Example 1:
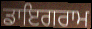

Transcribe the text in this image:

ਡਾਇਗਰਾਮ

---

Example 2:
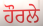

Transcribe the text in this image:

ਹੌਰਲੇ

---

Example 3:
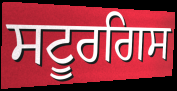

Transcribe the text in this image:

ਸਟੂਰਗਿਸ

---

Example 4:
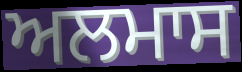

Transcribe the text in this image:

ਅਲਮਾਸ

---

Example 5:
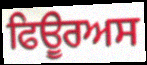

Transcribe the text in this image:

ਫਿਊਰਅਸ